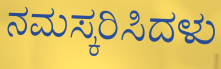
ನಮಸ್ಕರಿಸಿದಳು